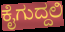
ಕೈಗುದ್ದಲಿ